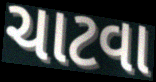
ચાટવા